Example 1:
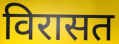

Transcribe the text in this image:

विरासत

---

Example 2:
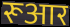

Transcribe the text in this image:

रूआर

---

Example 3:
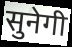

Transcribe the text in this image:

सुनेगी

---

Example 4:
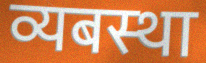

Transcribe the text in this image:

व्यबस्था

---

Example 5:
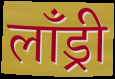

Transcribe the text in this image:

लॉंड्री